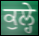
ਕੁਲ੍ਹੇ